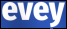
evey